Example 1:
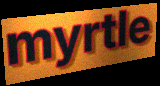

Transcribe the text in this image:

myrtle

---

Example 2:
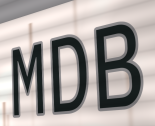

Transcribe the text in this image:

MDB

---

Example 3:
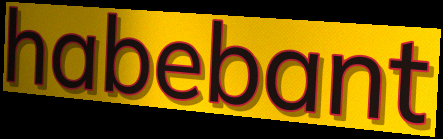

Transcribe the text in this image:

habebant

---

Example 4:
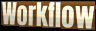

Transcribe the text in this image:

Workflow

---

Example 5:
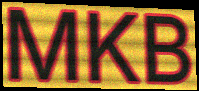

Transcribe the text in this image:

MKB